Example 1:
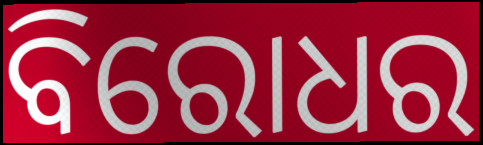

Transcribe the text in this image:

ବିରୋଧର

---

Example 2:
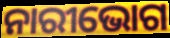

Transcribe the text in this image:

ନାରୀଭୋଗ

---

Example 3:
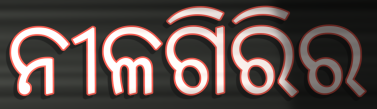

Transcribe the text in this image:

ନୀଳଗିରିର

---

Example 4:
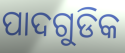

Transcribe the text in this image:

ପାଦଗୁଡିକ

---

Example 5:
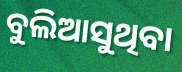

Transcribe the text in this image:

ବୁଲିଆସୁଥିବା